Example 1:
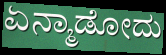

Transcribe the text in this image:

ಏನ್ಮಾಡೋದು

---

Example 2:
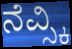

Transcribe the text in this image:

ನೆವ್ಸ್ಕಿ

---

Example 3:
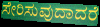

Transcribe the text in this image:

ಸೇರಿಸುವುದಾದರೆ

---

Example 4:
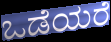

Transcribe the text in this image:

ಒಡೆಯರೆ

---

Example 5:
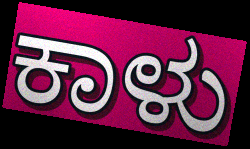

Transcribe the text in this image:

ಕಾಳು